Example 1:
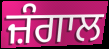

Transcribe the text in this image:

ਜ਼ੰਗਾਲ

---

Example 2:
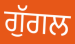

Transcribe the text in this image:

ਗੁੱਗਲ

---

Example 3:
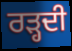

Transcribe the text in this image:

ਰੜ੍ਹਦੀ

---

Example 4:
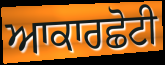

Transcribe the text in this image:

ਆਕਾਰਛੋਟੀ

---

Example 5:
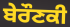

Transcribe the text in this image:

ਬੇਰੌਣਕੀ